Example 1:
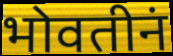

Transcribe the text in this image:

भोवतीनं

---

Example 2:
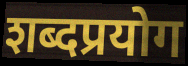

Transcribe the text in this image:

शब्दप्रयोग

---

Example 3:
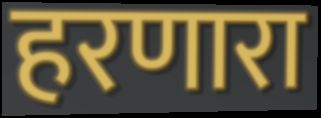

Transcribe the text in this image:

हरणारा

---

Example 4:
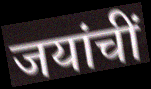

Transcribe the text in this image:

जयांचीं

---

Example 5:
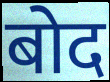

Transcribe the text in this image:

बोद